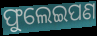
ଫୁଲେଇପଣ